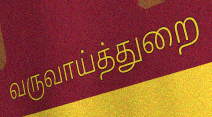
வருவாய்த்துறை